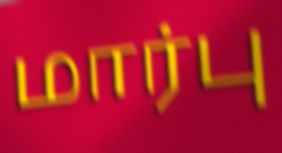
மார்பு